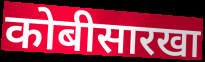
कोबीसारखा